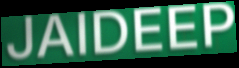
JAIDEEP